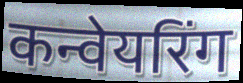
कन्वेयरिंग